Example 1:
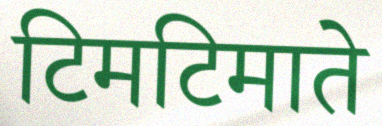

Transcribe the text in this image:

टिमटिमाते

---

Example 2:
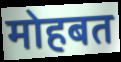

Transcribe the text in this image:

मोहबत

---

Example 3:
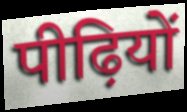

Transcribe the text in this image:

पीढ़ियों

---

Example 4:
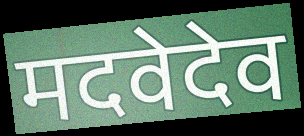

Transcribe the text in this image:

मदवेदेव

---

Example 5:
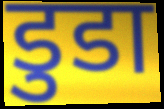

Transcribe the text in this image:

डुडा